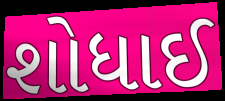
શોધાઈ